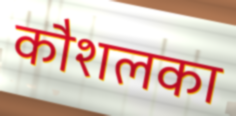
कौशलका